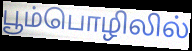
பூம்பொழிலில்